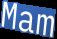
Mam